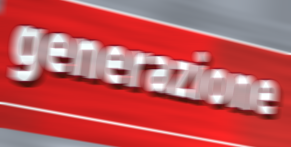
generazione